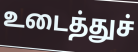
உடைத்துச்